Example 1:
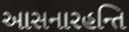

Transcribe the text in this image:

આસનારહન્તિ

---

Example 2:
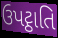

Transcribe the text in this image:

ઉપટ્ઠાતિ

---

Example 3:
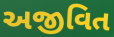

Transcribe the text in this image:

અજીવિત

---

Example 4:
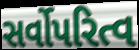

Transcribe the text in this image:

સર્વોપરિત્વ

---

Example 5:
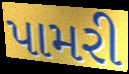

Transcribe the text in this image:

પામરી